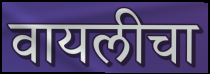
वायलीचा